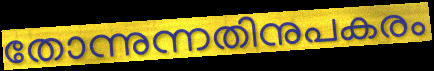
തോന്നുന്നതിനുപകരം